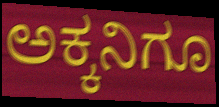
ಅಕ್ಕನಿಗೂ